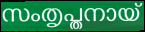
സംതൃപ്തനായ്